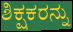
ಶಿಕ್ಷಕರನ್ನು